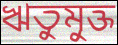
ঋতুমুক্ত